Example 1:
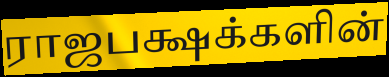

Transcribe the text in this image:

ராஜபக்ஷக்களின்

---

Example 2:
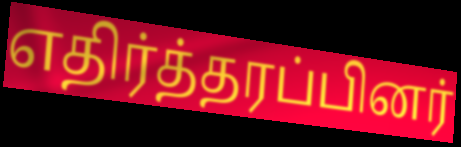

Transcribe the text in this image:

எதிர்த்தரப்பினர்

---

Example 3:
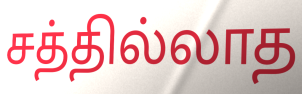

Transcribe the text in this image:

சத்தில்லாத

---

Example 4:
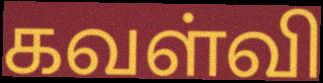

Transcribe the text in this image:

கவள்வி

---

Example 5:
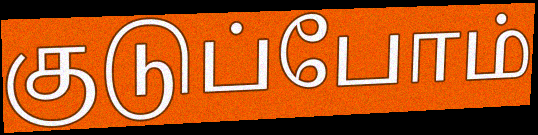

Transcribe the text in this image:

குடுப்போம்